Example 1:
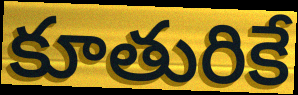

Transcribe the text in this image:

కూతురికే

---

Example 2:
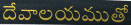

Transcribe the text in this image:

దేవాలయముతో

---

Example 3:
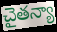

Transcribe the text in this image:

చైతన్యా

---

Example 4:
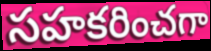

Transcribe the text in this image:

సహకరించగా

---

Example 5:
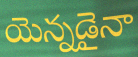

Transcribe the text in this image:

యెన్నడైనా